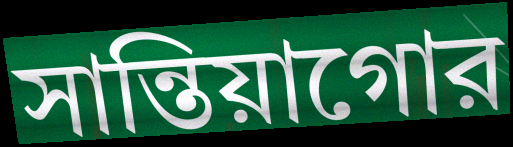
সান্তিয়াগোর